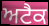
ਅਟੈਕ